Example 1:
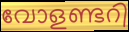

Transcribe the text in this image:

വോളണ്ടറി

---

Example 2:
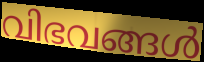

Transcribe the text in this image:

വിഭവങ്ങൾ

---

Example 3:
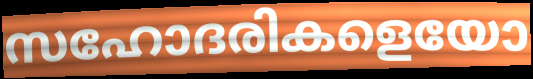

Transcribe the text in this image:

സഹോദരികളെയോ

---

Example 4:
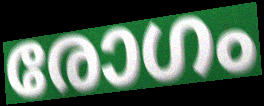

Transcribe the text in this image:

രോഗം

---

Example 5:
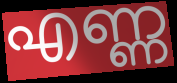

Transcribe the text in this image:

എണ്ണ